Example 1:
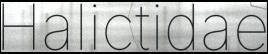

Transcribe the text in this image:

Halictidae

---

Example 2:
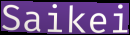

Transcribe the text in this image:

Saikei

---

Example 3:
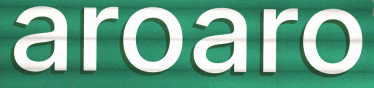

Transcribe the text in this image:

aroaro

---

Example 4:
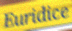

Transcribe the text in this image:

Euridice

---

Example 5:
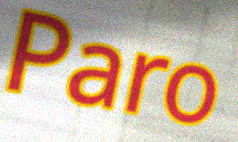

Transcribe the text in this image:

Paro